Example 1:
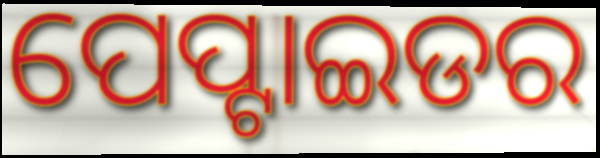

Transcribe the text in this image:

ପେପ୍ଟାଇଡର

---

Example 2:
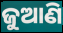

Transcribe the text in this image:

ଜୁଆଣି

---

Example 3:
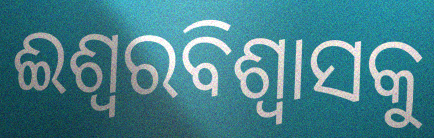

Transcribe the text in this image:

ଈଶ୍ୱରବିଶ୍ୱାସକୁ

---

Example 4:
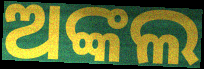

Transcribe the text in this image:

ଅଙ୍କଲ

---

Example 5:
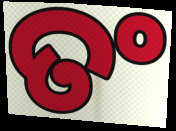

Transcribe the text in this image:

ତଂ